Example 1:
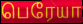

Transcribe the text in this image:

பெரேயா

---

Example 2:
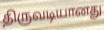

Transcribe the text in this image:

திருவடியானது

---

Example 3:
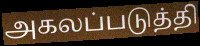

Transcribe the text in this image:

அகலப்படுத்தி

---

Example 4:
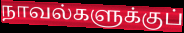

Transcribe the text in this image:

நாவல்களுக்குப்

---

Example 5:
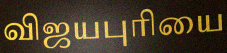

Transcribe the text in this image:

விஜயபுரியை